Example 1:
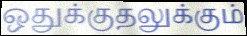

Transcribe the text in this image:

ஒதுக்குதலுக்கும்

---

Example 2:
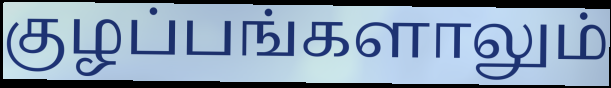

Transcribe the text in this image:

குழப்பங்களாலும்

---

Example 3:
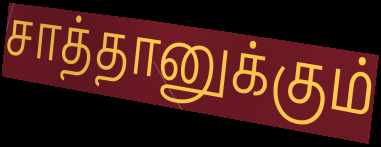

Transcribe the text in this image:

சாத்தானுக்கும்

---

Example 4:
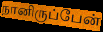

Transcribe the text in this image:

நானிருப்பேன்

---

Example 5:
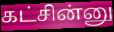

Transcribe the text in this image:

கட்சின்னு